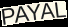
PAYAL